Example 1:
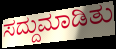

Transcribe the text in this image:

ಸದ್ದುಮಾಡಿತು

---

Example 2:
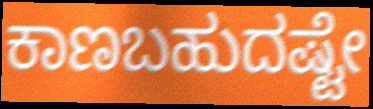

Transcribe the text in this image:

ಕಾಣಬಹುದಷ್ಟೇ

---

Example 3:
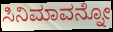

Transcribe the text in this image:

ಸಿನಿಮಾವನ್ನೋ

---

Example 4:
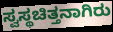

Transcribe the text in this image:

ಸ್ವಸ್ಥಚಿತ್ತನಾಗಿರು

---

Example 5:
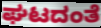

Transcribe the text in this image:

ಘಟದಂತೆ